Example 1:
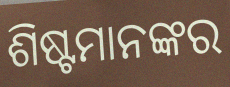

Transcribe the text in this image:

ଶିଷ୍ଟମାନଙ୍କର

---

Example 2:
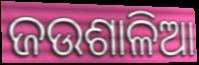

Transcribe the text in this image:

ଜଉଶାଳିଆ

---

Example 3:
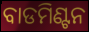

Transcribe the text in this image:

ବାଡମିଣ୍ଟନ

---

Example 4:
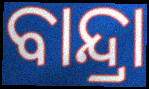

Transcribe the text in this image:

ବାନ୍ଦ୍ରା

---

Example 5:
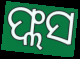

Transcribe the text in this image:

ଫ୍ଲସ